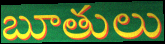
బూతులు